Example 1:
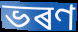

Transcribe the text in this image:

ভৰণ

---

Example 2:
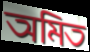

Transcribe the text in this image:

অমিত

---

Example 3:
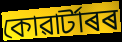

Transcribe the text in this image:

কোৱাৰ্টাৰৰ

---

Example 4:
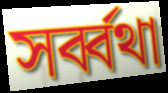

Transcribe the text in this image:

সৰ্ব্বথা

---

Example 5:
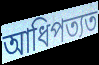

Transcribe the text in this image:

আধিপত্যত